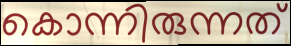
കൊന്നിരുന്നത്